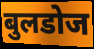
बुलडोज